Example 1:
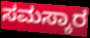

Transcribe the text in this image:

ಸಮಸ್ಕಾರ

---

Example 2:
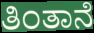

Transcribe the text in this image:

ತಿಂತಾನೆ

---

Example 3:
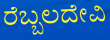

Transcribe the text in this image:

ರೆಬ್ಬಲದೇವಿ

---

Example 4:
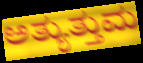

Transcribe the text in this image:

ಅತ್ಯುತ್ತುಮ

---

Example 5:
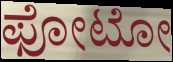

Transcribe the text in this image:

ಫೋಟೋ